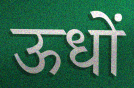
ऊधों